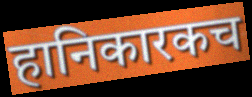
हानिकारकच